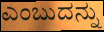
ಎಂಬುದನ್ನು